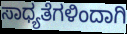
ಸಾಧ್ಯತೆಗಳಿಂದಾಗಿ